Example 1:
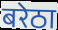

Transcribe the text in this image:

बरेठा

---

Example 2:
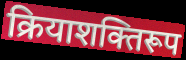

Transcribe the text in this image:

क्रियाशक्तिरूप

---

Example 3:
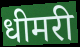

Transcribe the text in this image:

धीमरी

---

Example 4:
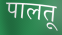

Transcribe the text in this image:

पालतू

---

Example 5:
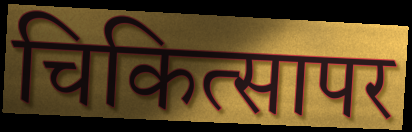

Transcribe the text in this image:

चिकित्सापर